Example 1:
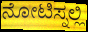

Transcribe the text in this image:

ನೋಟಿಸ್ನಲ್ಲಿ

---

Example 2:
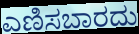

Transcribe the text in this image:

ಎಣಿಸಬಾರದು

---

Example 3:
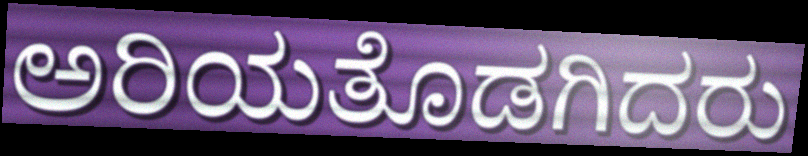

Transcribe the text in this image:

ಅರಿಯತೊಡಗಿದರು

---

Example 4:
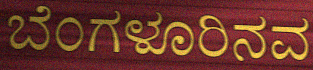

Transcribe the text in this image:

ಬೆಂಗಳೂರಿನವ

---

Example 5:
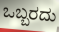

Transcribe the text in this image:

ಒಬ್ಬರದು